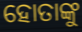
ହୋତାଙ୍କୁ